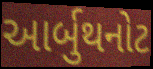
આર્બુથનોટ